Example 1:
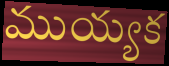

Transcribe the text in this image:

ముయ్యక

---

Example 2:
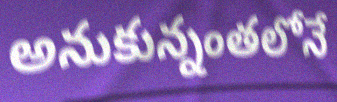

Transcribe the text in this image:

అనుకున్నంతలోనే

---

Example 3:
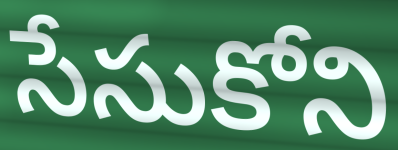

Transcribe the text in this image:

సేసుకోని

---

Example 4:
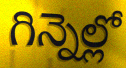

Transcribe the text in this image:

గిన్నెల్లో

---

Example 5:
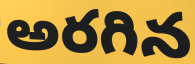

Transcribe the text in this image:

అరగిన